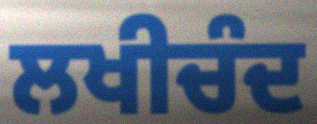
ਲਖੀਚੰਦ